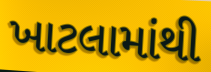
ખાટલામાંથી